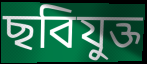
ছবিযুক্ত